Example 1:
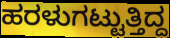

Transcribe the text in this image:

ಹರಳುಗಟ್ಟುತ್ತಿದ್ದ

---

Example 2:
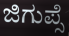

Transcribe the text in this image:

ಜಿಗುಪ್ಸೆ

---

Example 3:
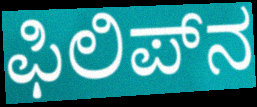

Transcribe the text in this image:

ಫಿಲಿಪ್‌ನ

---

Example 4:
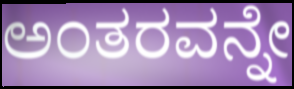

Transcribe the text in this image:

ಅಂತರವನ್ನೇ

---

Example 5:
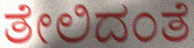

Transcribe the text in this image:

ತೇಲಿದಂತೆ